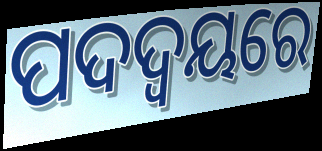
ପଦଦ୍ୱୟରେ